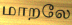
மாறலே